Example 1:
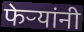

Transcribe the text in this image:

फेऱ्यांनी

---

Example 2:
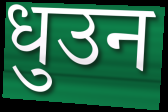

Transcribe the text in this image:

धुउन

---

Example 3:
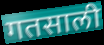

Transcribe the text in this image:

गतसाली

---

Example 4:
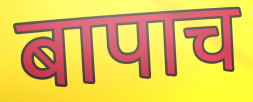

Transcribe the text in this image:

बापाच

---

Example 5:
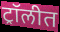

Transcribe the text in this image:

ट्रॉलीत